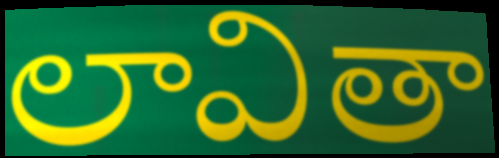
లావితా